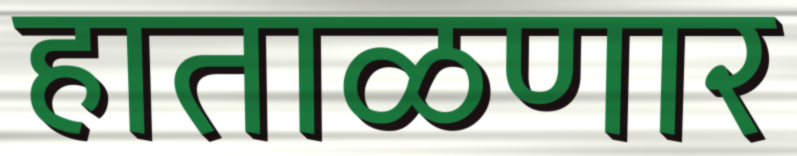
हाताळणार